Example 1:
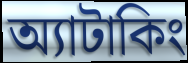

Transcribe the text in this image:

অ্যাটাকিং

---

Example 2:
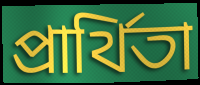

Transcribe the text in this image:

প্রার্থিতা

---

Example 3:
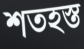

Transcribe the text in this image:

শতহস্ত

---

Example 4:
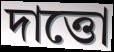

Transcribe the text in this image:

দাত্তো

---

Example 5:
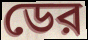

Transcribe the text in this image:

ডের